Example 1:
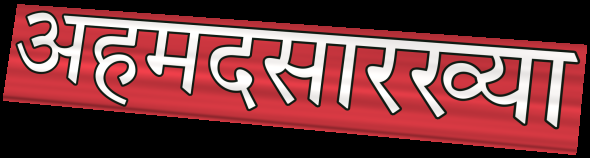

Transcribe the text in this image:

अहमदसारख्या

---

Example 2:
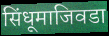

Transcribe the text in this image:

सिंधूमाजिवडा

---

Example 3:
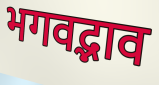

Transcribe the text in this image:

भगवद्भाव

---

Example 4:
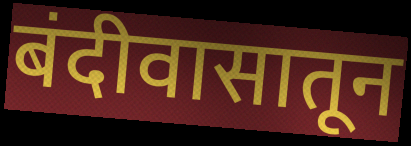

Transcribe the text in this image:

बंदीवासातून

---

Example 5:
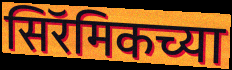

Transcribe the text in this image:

सिरॅमिकच्या